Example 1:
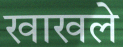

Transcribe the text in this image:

खाखले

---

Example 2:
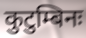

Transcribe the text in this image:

कुटुम्बिनः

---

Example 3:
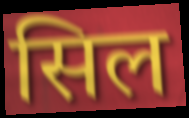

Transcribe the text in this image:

सिल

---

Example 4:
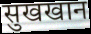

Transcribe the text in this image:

सुखखान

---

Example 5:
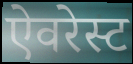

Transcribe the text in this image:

ऐवरेस्ट